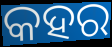
କହର